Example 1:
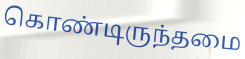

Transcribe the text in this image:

கொண்டிருந்தமை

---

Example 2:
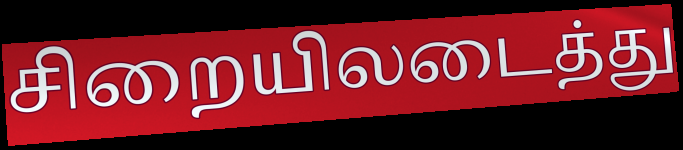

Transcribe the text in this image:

சிறையிலடைத்து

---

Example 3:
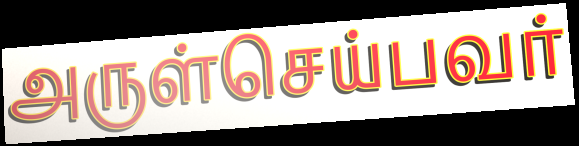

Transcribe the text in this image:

அருள்செய்பவர்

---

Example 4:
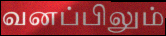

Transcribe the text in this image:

வனப்பிலும்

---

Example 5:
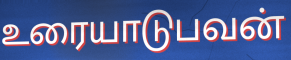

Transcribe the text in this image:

உரையாடுபவன்